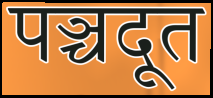
पञ्चदूत